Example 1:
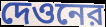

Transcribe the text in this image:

দেওনের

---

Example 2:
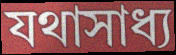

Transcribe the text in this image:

যথাসাধ্য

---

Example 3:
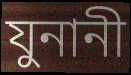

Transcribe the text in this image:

যুনানী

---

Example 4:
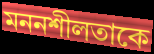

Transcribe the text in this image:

মননশীলতাকে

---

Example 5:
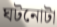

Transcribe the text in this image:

ঘটনোটা